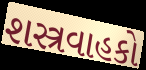
શસ્ત્રવાહકો